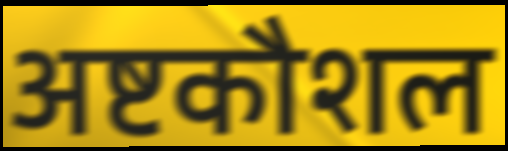
अष्टकौशल